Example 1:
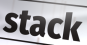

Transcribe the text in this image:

stack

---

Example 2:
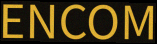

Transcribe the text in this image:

ENCOM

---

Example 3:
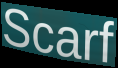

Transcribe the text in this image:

Scarf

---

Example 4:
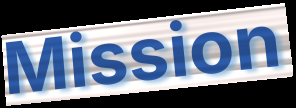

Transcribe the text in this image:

Mission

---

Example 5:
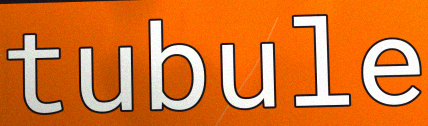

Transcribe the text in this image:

tubule